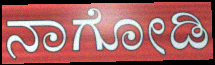
ನಾಗೋಡಿ